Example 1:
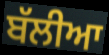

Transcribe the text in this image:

ਬੱਲੀਆ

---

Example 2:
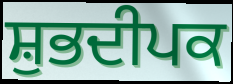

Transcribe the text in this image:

ਸ਼ੁਭਦੀਪਕ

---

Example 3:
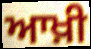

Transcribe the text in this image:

ਆਖ਼ੀ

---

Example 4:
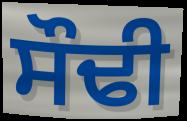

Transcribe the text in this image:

ਸੌਢੀ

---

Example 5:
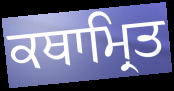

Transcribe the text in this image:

ਕਥਾਮ੍ਰਿਤ